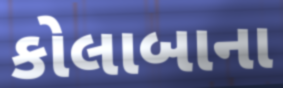
કોલાબાના